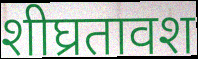
शीघ्रतावश